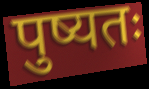
पुष्यतः